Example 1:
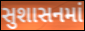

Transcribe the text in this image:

સુશાસનમાં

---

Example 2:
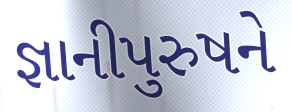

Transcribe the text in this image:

જ્ઞાનીપુરુષને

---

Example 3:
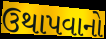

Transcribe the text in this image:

ઉથાપવાનો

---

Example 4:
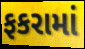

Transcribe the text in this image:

ફકરામાં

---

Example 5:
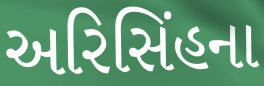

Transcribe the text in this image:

અરિસિંહના